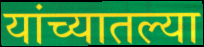
यांच्यातल्या